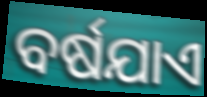
ବର୍ଷଯାଏ